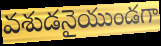
వశుడనైయుండగా